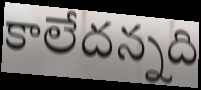
కాలేదన్నది